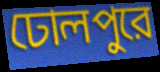
ঢোলপুরে